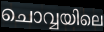
ചൊവ്വയിലെ